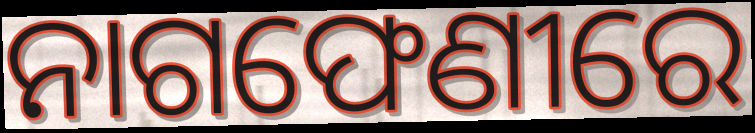
ନାଗଫେଣୀରେ